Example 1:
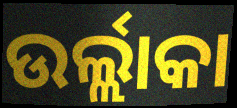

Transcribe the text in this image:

ଉର୍ଲ୍ଲାକା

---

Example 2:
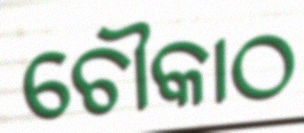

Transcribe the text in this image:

ଚୌକାଠ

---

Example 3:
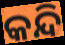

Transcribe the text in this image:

କନ୍ଦି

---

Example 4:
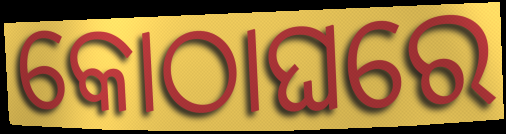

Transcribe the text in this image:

କୋଠାଘରେ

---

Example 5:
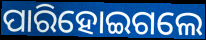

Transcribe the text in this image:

ପାରିହୋଇଗଲେ